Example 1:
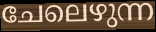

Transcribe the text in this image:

ചേലെഴുന്ന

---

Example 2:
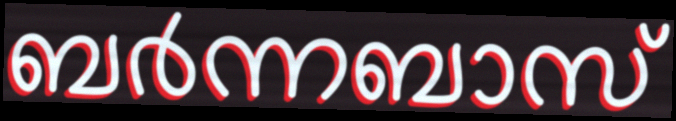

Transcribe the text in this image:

ബർന്നബാസ്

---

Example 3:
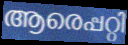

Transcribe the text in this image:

ആരെപ്പറ്റി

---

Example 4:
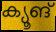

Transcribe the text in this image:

ക്യൂങ്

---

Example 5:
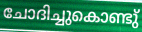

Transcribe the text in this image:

ചോദിച്ചുകൊണ്ടു്